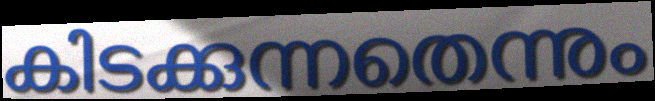
കിടക്കുന്നതെന്നും